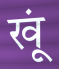
खूं